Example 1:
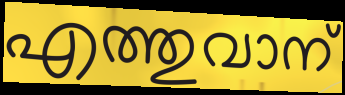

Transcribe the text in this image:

എത്തുവാന്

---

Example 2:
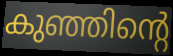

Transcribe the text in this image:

കുഞ്ഞിന്റെ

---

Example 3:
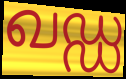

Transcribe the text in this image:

ഖഡ്ഡ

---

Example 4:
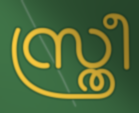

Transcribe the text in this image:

സ്ത്രീ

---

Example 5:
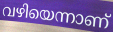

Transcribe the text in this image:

വഴിയെന്നാണ്